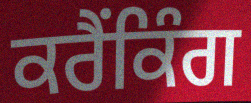
ਕਰੈਂਕਿੰਗ